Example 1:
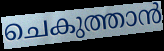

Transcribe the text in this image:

ചെകുത്താൻ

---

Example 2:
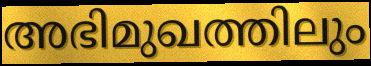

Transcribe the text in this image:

അഭിമുഖത്തിലും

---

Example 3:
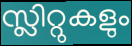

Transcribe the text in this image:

സ്ലിറ്റുകളും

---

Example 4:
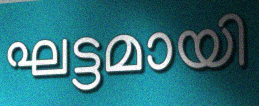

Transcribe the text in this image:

ഘട്ടമായി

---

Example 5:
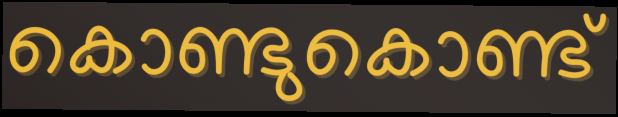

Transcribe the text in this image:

കൊണ്ടുകൊണ്ട്